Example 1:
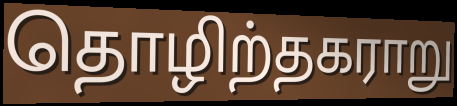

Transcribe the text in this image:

தொழிற்தகராறு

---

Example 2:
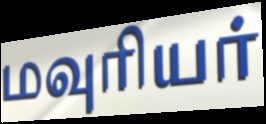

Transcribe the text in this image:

மவுரியர்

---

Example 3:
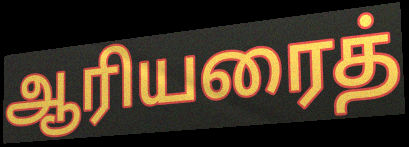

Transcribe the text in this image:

ஆரியரைத்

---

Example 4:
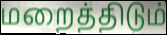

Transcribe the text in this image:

மறைத்திடும்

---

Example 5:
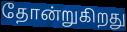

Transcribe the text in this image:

தோன்றுகிறது